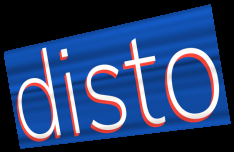
disto